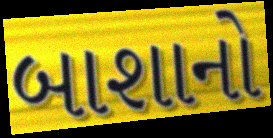
બાશાનો